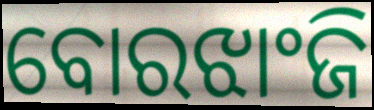
ବୋରଝାଂଜି